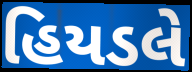
હિયડલે